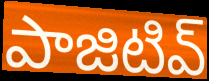
పాజిటివ్